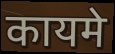
कायमे